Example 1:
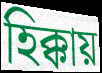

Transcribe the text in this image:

হিক্কায়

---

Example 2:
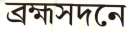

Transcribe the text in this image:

ব্রহ্মসদনে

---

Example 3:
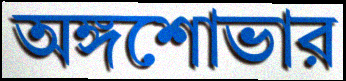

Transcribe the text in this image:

অঙ্গশোভার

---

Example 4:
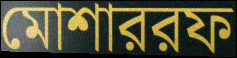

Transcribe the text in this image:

মোশাররফ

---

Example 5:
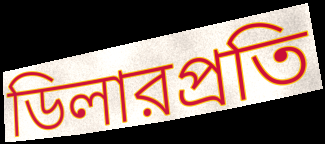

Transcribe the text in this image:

ডিলারপ্রতি